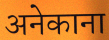
अनेकाना